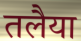
तलैया